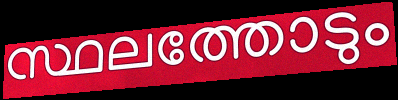
സ്ഥലത്തോടും